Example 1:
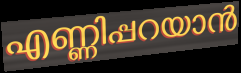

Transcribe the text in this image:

എണ്ണിപ്പറയാൻ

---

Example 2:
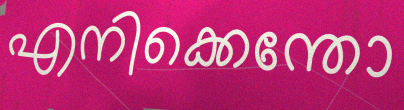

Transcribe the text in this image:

എനിക്കെന്തോ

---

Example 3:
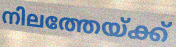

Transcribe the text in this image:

നിലത്തേയ്ക്ക്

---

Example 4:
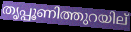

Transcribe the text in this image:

തൃപ്പൂണിത്തുറയില്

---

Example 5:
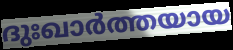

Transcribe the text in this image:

ദുഃഖാർത്തയായ